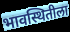
भावस्थितीला